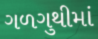
ગળગુથીમાં